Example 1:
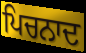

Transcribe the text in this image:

ਪਿਚਨਾਦ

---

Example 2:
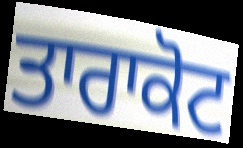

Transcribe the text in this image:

ਤਾਰਾਕੋਟ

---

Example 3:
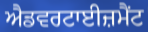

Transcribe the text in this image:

ਐਡਵਰਟਾਈਜ਼ਮੈਂਟ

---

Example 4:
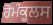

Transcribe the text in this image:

ਹੋਮੰਕੂਲਸ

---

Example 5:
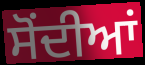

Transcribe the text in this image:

ਸੋਂਦੀਆਂ